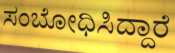
ಸಂಬೋಧಿಸಿದ್ದಾರೆ